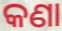
କଣା